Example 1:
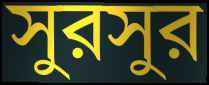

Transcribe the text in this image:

সুরসুর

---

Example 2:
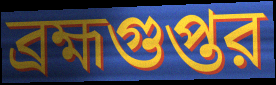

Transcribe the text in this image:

ব্রহ্মগুপ্তর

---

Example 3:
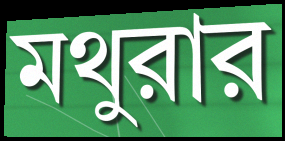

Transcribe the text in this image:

মথুরার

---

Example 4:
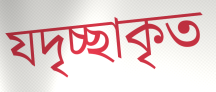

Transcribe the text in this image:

যদৃচ্ছাকৃত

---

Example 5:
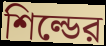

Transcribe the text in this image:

শিল্ডের